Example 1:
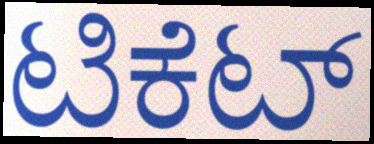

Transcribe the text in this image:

ಟಿಕೆಟ್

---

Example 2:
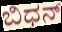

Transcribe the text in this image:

ಬಿಧನ್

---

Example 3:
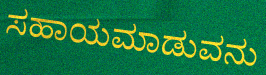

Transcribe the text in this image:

ಸಹಾಯಮಾಡುವನು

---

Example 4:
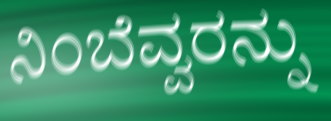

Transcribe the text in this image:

ನಿಂಬೆವ್ವರನ್ನು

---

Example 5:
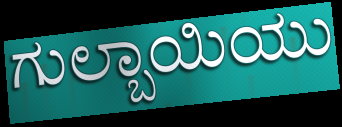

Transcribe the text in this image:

ಗುಲ್ಬಾಯಿಯು